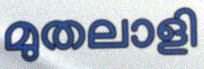
മുതലാളി